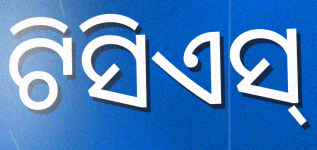
ଟିସିଏସ୍